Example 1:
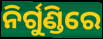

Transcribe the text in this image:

ନିର୍ଗୁଣ୍ଡିରେ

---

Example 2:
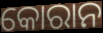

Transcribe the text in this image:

କୋରାନ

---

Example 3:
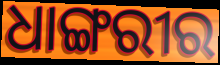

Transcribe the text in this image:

ଧାଙ୍ଗରୀର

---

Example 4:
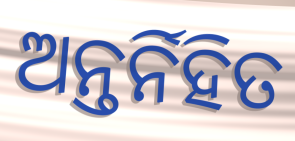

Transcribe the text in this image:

ଅନ୍ତର୍ନିହିତ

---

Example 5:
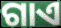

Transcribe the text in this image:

ଗାଏ